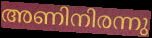
അണിനിരന്നു